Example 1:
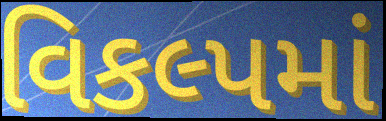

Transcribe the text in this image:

વિકલ્પમાં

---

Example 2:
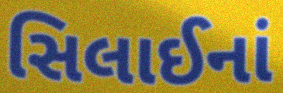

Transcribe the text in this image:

સિલાઈનાં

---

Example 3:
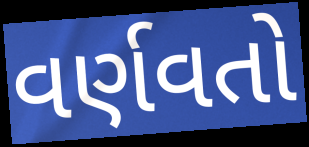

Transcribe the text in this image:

વર્ણવતો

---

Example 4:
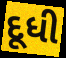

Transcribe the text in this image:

દૂધી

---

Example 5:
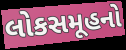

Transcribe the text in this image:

લોકસમૂહનો